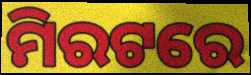
ମିରଟରେ